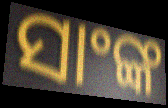
ସାଂଙ୍କ